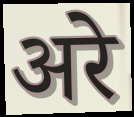
अरे